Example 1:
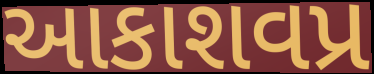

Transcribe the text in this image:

આકાશવપ્ર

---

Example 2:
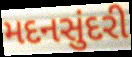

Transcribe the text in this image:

મદનસુંદરી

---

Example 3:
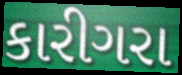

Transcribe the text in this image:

કારીગરા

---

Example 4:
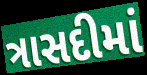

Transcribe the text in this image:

ત્રાસદીમાં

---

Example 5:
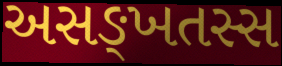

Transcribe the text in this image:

અસઙ્ખતસ્સ